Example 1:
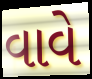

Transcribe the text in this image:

વાવે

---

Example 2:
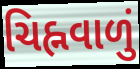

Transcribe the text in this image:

ચિહ્નવાળું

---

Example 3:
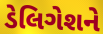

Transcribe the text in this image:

ડેલિગેશને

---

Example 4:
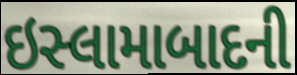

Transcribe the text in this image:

ઇસ્લામાબાદની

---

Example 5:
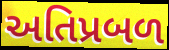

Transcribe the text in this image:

અતિપ્રબળ